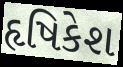
હૃષિકેશ